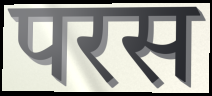
परस